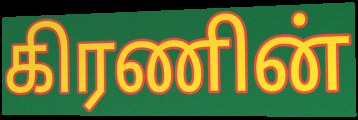
கிரணின்